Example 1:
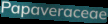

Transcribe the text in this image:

Papaveraceae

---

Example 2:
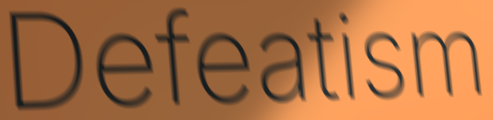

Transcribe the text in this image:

Defeatism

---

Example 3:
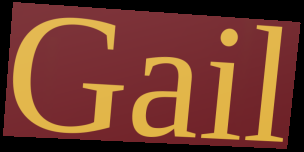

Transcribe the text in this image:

Gail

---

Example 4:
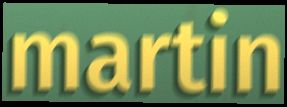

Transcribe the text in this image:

martin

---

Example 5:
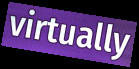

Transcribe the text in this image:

virtually